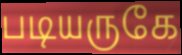
படியருகே